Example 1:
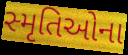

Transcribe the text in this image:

સ્મૃતિઓના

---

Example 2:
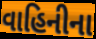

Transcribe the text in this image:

વાહિનીના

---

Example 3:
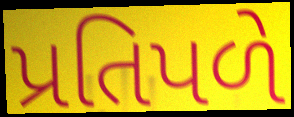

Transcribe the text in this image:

પ્રતિપળે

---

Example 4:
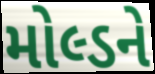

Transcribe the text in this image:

મોલ્ડને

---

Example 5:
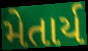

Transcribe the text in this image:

મેતાર્ય